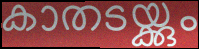
കാതടയ്ക്കും